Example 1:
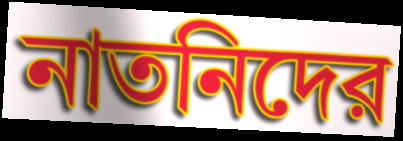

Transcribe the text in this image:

নাতনিদের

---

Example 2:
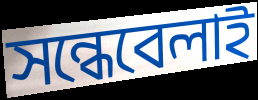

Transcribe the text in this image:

সন্ধেবেলাই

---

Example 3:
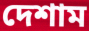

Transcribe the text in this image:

দেশাম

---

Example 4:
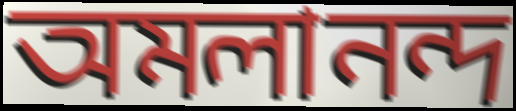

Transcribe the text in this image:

অমলানন্দ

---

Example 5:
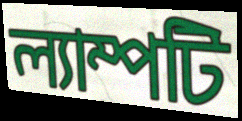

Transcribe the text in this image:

ল্যাম্পটি